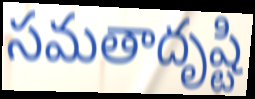
సమతాదృష్టి